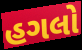
હગલો